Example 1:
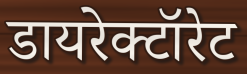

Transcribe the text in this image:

डायरेक्टॉरेट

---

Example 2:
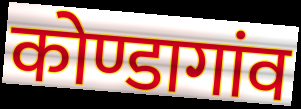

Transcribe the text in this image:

कोण्डागांव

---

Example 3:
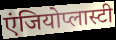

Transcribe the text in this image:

एंजियोप्लास्टी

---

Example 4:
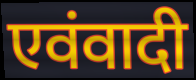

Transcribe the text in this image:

एवंवादी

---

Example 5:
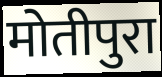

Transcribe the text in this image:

मोतीपुरा